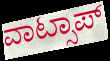
ವಾಟ್ಸಾಪ್